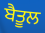
ਬੈਤੂਲ